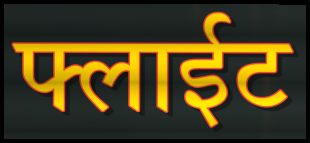
फ्लाईट